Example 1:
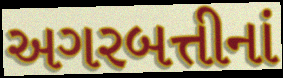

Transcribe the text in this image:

અગરબત્તીનાં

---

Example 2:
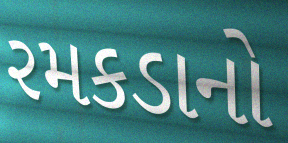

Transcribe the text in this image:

રમકડાનો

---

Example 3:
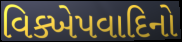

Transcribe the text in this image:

વિક્ખેપવાદિનો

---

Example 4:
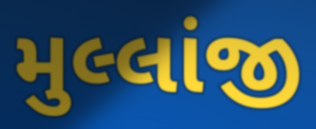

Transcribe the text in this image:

મુલ્લાંજી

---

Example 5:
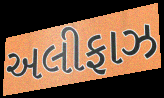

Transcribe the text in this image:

અલીફાઝ